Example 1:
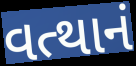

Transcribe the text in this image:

વત્થાનં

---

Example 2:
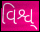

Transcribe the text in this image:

વિશ્વ્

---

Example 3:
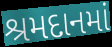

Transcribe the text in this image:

શ્રમદાનમાં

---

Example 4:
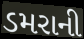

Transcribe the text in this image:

ડમરાની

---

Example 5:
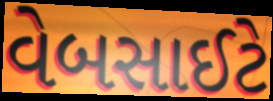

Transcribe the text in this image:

વેબસાઈટે